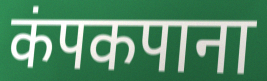
कंपकपाना